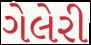
ગેલેરી